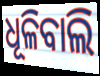
ଧୂଳିବାଲି